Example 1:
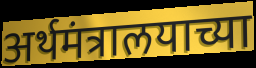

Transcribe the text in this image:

अर्थमंत्रालयाच्या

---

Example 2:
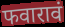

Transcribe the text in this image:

फवारावं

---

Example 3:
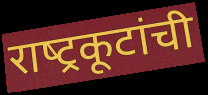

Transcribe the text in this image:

राष्ट्रकूटांची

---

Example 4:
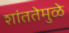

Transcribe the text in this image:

शांततेमुळे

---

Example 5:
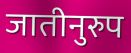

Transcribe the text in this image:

जातीनुरुप